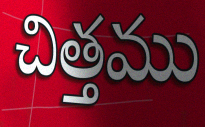
చిత్తము